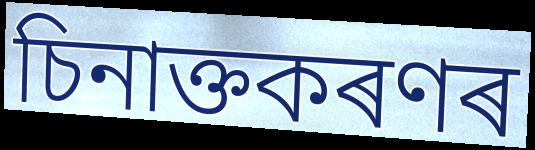
চিনাক্তকৰণৰ